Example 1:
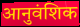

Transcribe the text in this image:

आनुवंशिक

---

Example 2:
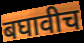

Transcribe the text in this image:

बघावीच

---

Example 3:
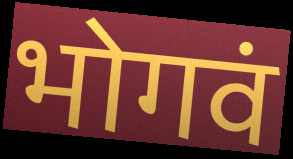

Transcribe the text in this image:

भोगवं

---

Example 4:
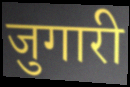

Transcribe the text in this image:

जुगारी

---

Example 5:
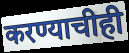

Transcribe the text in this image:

करण्याचीही